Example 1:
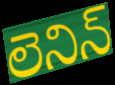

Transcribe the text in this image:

లెనిన్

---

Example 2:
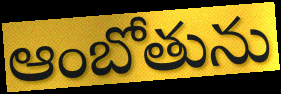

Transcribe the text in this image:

ఆంబోతును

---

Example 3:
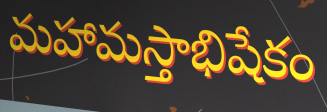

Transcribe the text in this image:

మహామస్తాభిషేకం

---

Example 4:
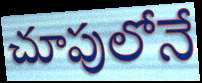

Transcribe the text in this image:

చూపులోనే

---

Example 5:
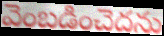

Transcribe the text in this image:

వెంబడించెదను